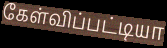
கேள்விப்பட்டியா